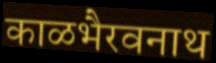
काळभैरवनाथ